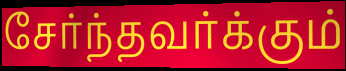
சேர்ந்தவர்க்கும்